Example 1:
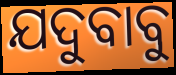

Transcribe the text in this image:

ଯଦୁବାବୁ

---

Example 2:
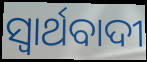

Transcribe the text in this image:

ସ୍ୱାର୍ଥବାଦୀ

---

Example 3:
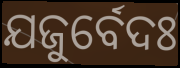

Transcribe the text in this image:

ଯଜୁର୍ବେଦଃ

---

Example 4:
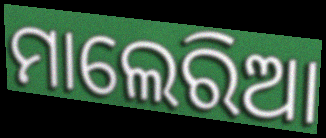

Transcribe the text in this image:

ମାଲେରିଆ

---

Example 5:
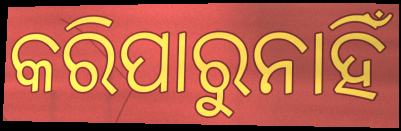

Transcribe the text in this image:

କରିପାରୁନାହିଁ